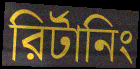
রির্টানিং